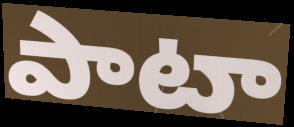
పాటా